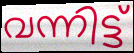
വന്നിട്ട്